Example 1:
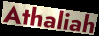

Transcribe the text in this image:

Athaliah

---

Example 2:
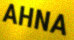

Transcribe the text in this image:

AHNA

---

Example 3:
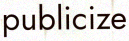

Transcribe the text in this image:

publicize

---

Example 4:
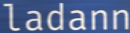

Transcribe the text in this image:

ladann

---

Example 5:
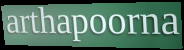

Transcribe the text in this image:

arthapoorna